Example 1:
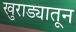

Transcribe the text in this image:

खुराड्यातून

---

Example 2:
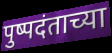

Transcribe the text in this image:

पुष्पदंताच्या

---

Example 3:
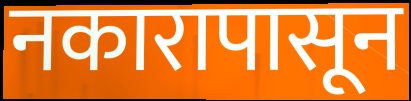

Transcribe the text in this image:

नकारापासून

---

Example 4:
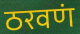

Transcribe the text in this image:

ठरवणं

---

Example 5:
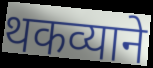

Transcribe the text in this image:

थकव्याने